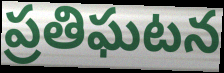
ప్రతిఘటన